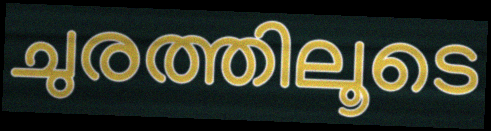
ചുരത്തിലൂടെ